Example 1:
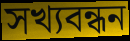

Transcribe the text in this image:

সখ্যবন্ধন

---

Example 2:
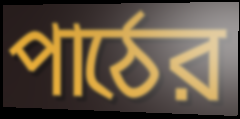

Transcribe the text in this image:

পাঠের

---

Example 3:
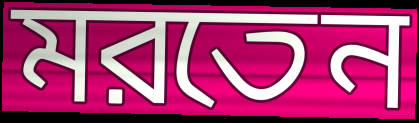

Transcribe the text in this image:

মরতেন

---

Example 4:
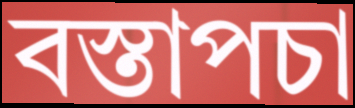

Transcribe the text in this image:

বস্তাপচা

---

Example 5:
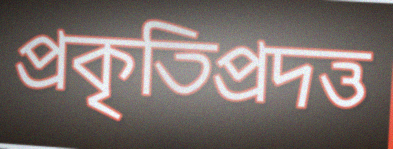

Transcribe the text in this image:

প্রকৃতিপ্রদত্ত